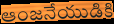
ఆంజనేయుడికి